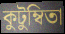
কুটুম্বিতা